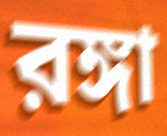
রঙ্গা